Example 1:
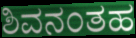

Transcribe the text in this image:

ಶಿವನಂತಹ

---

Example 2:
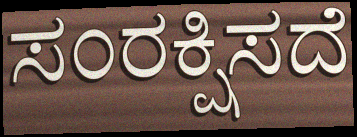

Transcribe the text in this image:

ಸಂರಕ್ಷಿಸದೆ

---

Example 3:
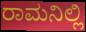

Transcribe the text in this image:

ರಾಮನಿಲ್ಲಿ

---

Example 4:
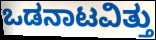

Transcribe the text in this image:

ಒಡನಾಟವಿತ್ತು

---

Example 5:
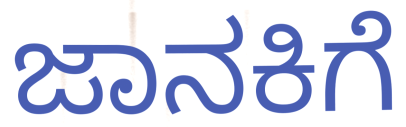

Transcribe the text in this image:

ಜಾನಕಿಗೆ